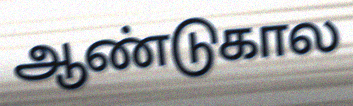
ஆண்டுகால